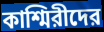
কাশ্মিরীদের